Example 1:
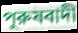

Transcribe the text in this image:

পুরুষবাদী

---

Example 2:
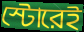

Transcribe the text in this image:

স্টোরেই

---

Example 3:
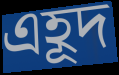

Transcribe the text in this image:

এহূদ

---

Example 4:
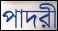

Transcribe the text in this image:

পাদরী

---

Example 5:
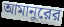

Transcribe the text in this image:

আমানুরের